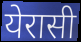
येरासी